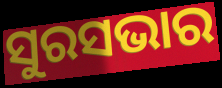
ସୁରସଭାର